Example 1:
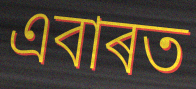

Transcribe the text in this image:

এবাৰত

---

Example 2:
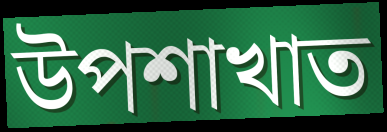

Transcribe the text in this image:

উপশাখাত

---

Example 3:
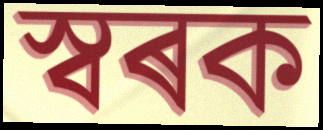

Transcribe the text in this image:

স্বৰক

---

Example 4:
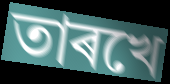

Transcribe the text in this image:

তাৰখে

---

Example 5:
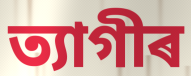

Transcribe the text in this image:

ত্যাগীৰ